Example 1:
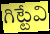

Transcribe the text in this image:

గిట్టేవి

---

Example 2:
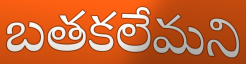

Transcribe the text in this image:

బతకలేమని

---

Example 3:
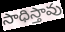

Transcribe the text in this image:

సాధిస్తావు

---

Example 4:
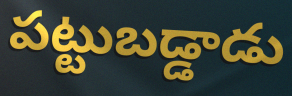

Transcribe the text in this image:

పట్టుబడ్డాడు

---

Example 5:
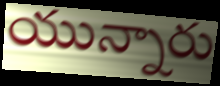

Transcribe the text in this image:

యున్నారు